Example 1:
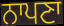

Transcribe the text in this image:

ਨਾਪਣਾ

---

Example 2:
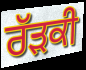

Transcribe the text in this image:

ਰੱੜਕੀ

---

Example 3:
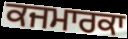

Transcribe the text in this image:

ਕਜਮਾਰਕਾ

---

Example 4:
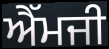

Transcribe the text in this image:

ਐੱਮਜੀ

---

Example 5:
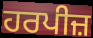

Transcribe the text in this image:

ਹਰਪੀਜ਼